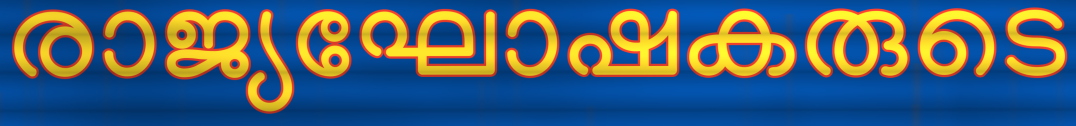
രാജ്യഘോഷകരുടെ